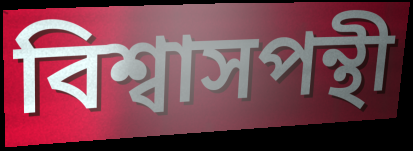
বিশ্বাসপন্থী